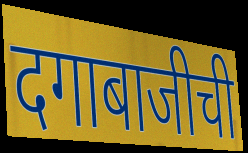
दगाबाजीची